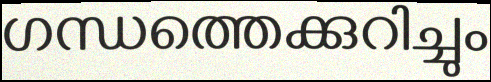
ഗന്ധത്തെക്കുറിച്ചും